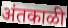
अंतकाळी